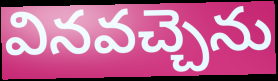
వినవచ్చెను